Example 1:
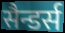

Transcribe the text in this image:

सैन्डर्स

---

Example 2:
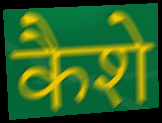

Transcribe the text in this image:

कैशे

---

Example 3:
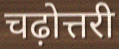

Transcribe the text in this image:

चढ़ोत्तरी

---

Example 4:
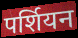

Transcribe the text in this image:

पर्शियन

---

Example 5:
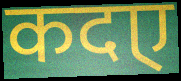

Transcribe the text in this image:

कदए